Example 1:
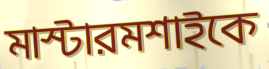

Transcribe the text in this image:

মাস্টারমশাইকে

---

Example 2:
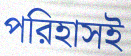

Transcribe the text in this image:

পরিহাসই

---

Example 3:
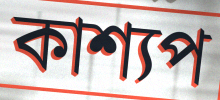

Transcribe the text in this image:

কাশ্যপ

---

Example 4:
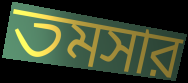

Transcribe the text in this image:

তমসার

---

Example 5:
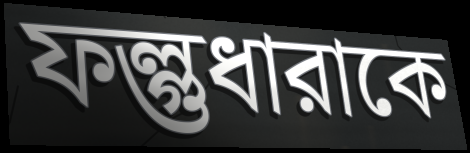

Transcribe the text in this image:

ফল্গুধারাকে